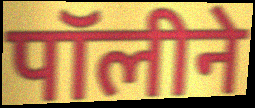
पॉलीने